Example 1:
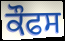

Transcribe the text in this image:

ਕੌਫਸ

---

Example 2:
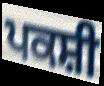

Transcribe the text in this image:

ਪਕਸ਼ੀ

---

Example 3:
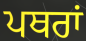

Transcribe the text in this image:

ਪਥਰਾਂ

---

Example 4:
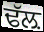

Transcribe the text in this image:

ਢੱਲ਼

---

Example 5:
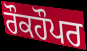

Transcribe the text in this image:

ਰੌਕਹੌਪਰ